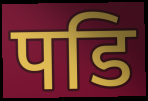
पडि